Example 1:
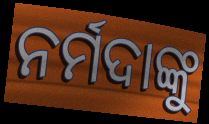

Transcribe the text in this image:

ନର୍ମଦାଙ୍କୁ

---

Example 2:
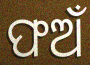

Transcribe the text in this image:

ଫଅଁ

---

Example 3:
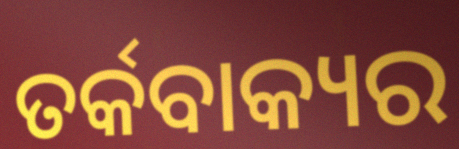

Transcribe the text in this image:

ତର୍କବାକ୍ୟର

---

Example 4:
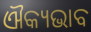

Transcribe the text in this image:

ଐକ୍ୟଭାବ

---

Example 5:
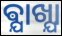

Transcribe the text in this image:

ଵ୍ଯାଖ୍ଯା